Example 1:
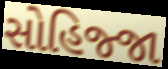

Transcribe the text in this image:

સોહિજ્જા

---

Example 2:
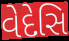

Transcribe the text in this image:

વેદેસિ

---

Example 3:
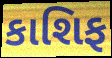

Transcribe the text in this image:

કાશિફ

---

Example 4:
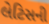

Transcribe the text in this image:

લેટિસની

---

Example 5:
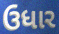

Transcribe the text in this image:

ઉધાર